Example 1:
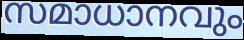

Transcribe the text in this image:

സമാധാനവും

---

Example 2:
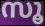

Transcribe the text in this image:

സൂ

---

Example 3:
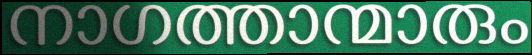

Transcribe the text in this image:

നാഗത്താന്മാരും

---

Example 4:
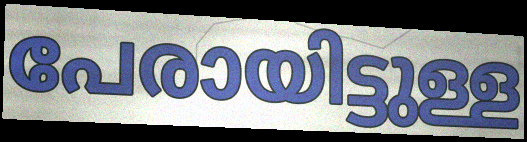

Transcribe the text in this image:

പേരായിട്ടുള്ള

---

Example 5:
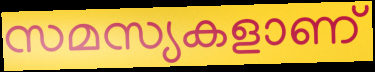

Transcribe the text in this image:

സമസ്യകളാണ്